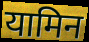
यामिन